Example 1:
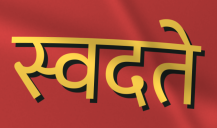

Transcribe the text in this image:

स्वदते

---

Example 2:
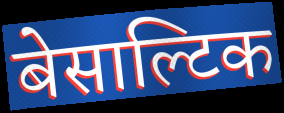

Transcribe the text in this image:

बेसाल्टिक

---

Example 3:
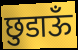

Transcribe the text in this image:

छुडाऊँ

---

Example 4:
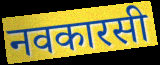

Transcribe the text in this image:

नवकारसी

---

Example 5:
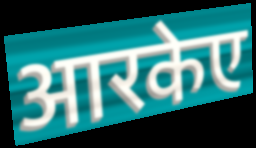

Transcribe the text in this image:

आरकेए